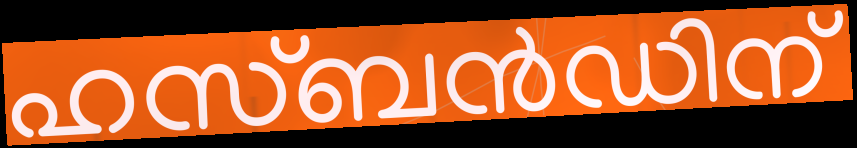
ഹസ്ബൻഡിന്